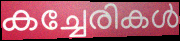
കച്ചേരികൾ